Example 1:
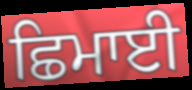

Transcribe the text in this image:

ਛਿਮਾਈ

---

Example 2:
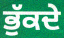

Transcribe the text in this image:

ਭੁੱਕਦੇ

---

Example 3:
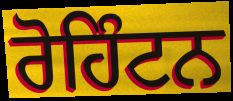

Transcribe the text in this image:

ਰੋਹਿੰਟਨ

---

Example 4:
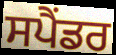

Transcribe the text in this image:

ਸਪੈਂਡਰ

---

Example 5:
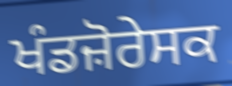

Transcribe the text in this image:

ਖੰਡਜ਼ੋਰੇਸਕ